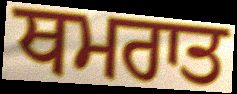
ਥਮਰਾਤ